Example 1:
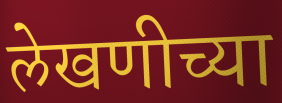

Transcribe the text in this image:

लेखणीच्या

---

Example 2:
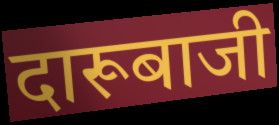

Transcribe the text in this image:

दारूबाजी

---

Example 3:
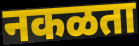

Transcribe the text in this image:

नकळता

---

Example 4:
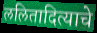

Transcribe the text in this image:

ललितादित्याचे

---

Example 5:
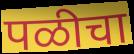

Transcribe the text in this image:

पळीचा